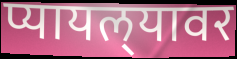
प्यायल्यावर